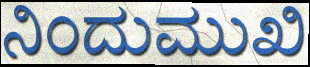
ನಿಂದುಮುಖಿ